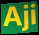
Aji